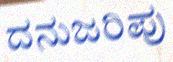
ದನುಜರಿಪು